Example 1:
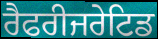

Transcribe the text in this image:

ਰੈਫਰੀਜਰੇਟਿਡ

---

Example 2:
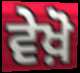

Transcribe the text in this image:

ਵੇਖ਼ੋ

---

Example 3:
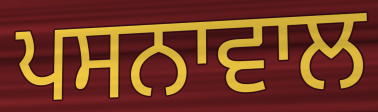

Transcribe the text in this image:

ਪਸਨਾਵਾਲ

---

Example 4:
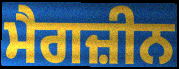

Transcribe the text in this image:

ਮੈਗਜ਼ੀਨ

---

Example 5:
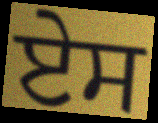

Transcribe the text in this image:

ਏਸ